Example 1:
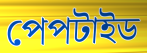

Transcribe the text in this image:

পেপটাইড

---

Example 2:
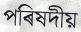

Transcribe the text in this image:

পৰিষদীয়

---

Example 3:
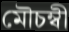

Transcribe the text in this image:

মৌচম্বী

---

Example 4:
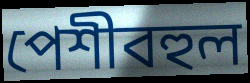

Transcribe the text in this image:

পেশীবহুল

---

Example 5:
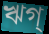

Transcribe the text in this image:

ঋগ্